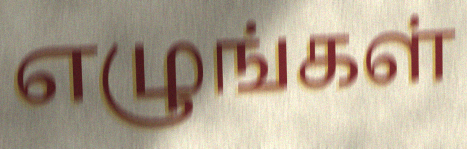
எழுங்கள்